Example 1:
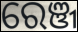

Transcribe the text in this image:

ରେଞ୍ଜ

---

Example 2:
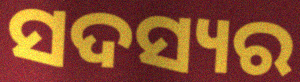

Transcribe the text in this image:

ସଦସ୍ୟର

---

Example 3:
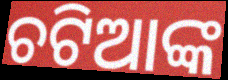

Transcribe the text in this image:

ଚଟିଆଙ୍କ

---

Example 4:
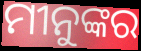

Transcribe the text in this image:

ମୀନୁଙ୍କର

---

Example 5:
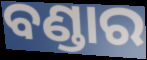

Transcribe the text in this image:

ବଣ୍ଡାର